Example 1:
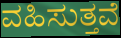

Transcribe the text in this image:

ವಹಿಸುತ್ತವೆ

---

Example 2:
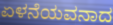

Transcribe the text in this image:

ಏಳನೆಯವನಾದ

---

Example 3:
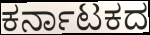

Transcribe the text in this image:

ಕರ್ನಾಟಕದ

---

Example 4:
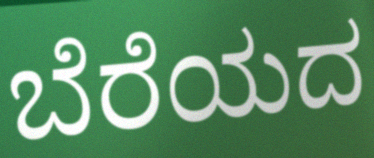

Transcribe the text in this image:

ಬೆರೆಯದ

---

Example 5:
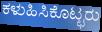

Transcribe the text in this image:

ಕಳುಹಿಸಿಕೊಟ್ಟರು